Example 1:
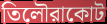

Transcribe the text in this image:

তিলৌরাকোট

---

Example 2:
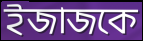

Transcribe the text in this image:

ইজাজকে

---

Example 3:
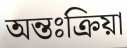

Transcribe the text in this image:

অন্তঃক্রিয়া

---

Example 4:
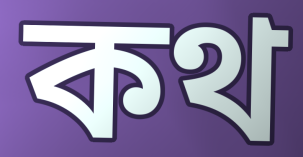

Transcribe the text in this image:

কথ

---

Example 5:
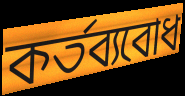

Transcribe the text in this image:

কর্তব্যবোধ